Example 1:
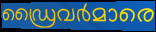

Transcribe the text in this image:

ഡ്രൈവർമാരെ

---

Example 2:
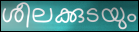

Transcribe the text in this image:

ശീലക്കുടയും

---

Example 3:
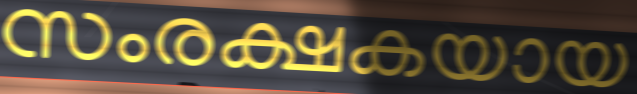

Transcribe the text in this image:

സംരക്ഷകയായ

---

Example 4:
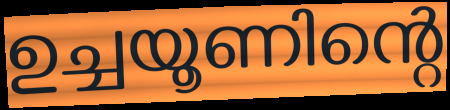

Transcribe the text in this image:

ഉച്ചയൂണിന്റെ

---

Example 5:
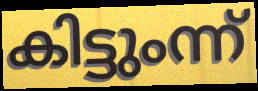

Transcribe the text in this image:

കിട്ടുംന്ന്